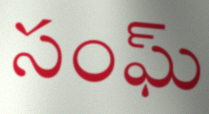
సంఘ్